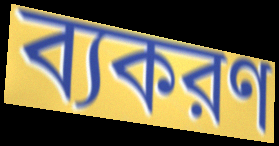
ব্যকরণ